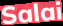
Salai